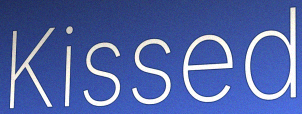
Kissed